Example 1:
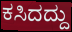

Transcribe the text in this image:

ಕಸಿದದ್ದು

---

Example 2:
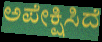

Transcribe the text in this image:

ಅಪೇಕ್ಷಿಸಿದೆ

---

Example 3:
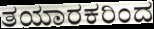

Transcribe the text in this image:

ತಯಾರಕರಿಂದ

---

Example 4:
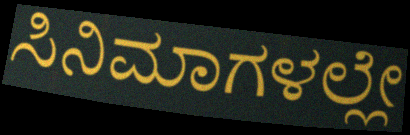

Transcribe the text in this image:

ಸಿನಿಮಾಗಳಲ್ಲೇ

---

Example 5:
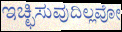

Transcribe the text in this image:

ಇಚ್ಛಿಸುವುದಿಲ್ಲವೋ